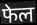
फेल